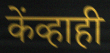
केंव्हाही